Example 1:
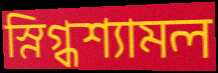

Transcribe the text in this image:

স্নিগ্ধশ্যামল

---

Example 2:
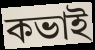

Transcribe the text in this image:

কভাই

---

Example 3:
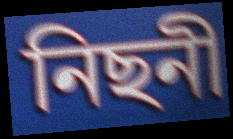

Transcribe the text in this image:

নিছনী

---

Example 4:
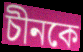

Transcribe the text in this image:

চীনকে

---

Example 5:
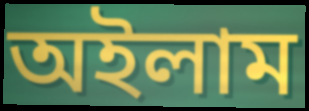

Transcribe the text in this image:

অইলাম